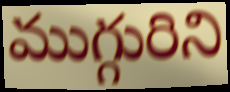
ముగ్గురిని